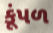
કૂંપળ